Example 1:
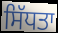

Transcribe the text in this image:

ਸਿੱਧਤਾ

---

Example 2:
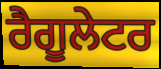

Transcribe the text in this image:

ਰੈਗੂਲੇਟਰ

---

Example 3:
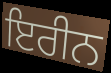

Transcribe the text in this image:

ਇਰੀਨ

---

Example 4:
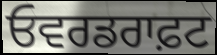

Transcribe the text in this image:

ਓਵਰਡਰਾਫ਼ਟ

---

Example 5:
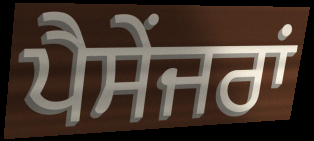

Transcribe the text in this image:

ਪੈਸੇਂਜਰਾਂ